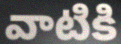
వాటికి